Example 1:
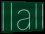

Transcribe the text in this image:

llall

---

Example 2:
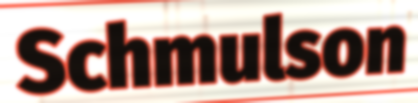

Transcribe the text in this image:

Schmulson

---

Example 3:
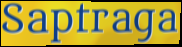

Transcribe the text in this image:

Saptraga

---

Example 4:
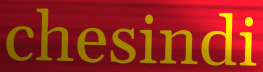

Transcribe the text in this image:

chesindi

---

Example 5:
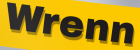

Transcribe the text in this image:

Wrenn